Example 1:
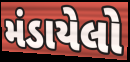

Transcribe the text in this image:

મંડાયેલો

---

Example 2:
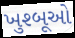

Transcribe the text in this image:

ખુશ્બૂઓ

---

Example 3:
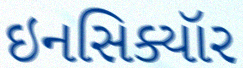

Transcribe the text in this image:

ઇનસિક્યૉર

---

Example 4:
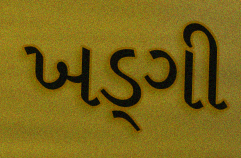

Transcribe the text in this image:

ખડ્ગી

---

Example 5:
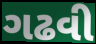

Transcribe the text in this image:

ગઢવી